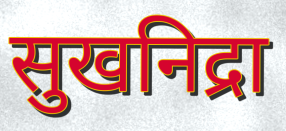
सुखनिद्रा